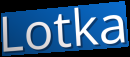
Lotka